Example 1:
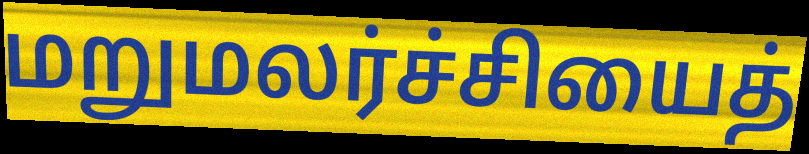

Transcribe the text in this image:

மறுமலர்ச்சியைத்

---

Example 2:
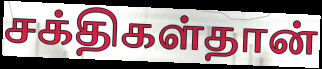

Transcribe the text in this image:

சக்திகள்தான்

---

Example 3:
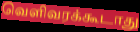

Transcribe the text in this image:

வெளிவரக்கூடாது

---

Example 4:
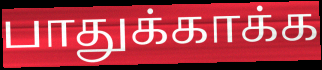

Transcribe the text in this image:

பாதுக்காக்க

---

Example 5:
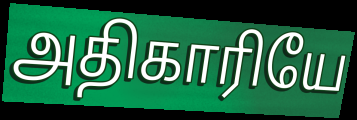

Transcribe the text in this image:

அதிகாரியே